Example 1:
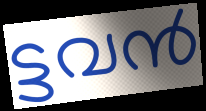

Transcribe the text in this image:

ട്ടവൻ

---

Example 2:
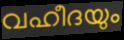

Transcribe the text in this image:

വഹീദയും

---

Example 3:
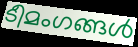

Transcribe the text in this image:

ടീമംഗങ്ങൾ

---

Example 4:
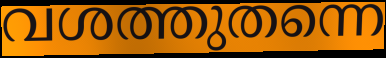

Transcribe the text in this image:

വശത്തുതന്നെ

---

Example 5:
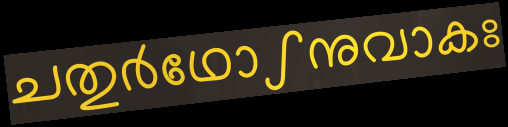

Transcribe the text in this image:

ചതുർഥോഽനുവാകഃ